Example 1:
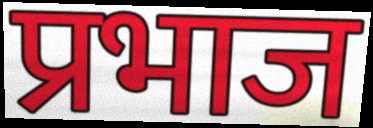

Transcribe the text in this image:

प्रभाज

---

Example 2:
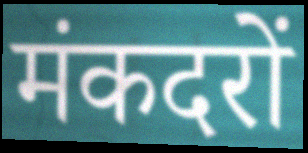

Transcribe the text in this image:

मंकदरों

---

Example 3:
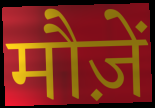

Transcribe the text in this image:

मौज़ें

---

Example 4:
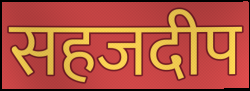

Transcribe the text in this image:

सहजदीप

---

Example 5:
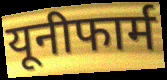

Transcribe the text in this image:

यूनीफार्म